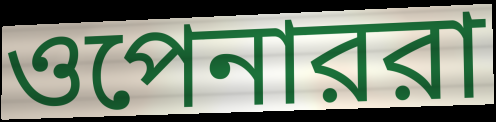
ওপেনাররা